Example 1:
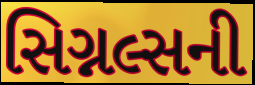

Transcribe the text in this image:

સિગ્નલ્સની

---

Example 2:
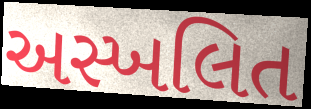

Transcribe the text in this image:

અસ્ખલિત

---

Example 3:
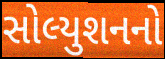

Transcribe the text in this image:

સોલ્યુશનનો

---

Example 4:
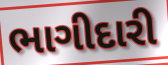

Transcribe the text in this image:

ભાગીદારી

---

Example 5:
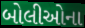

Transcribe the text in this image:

બોલીઓના